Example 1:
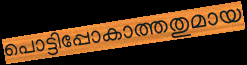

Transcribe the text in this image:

പൊട്ടിപ്പോകാത്തതുമായ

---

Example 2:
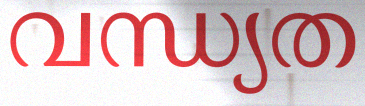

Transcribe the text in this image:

വന്ധ്യത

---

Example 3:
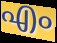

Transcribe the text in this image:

എം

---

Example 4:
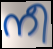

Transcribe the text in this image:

നീ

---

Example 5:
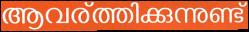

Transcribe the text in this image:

ആവര്ത്തിക്കുന്നുണ്ട്